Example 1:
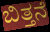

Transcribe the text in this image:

ಬಿತ್ತನೆ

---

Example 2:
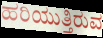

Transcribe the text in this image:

ಹರಿಯುತ್ತಿರುವ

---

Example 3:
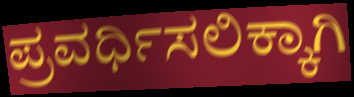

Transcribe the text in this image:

ಪ್ರವರ್ಧಿಸಲಿಕ್ಕಾಗಿ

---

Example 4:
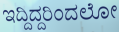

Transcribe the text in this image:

ಇದ್ದಿದ್ದರಿಂದಲೋ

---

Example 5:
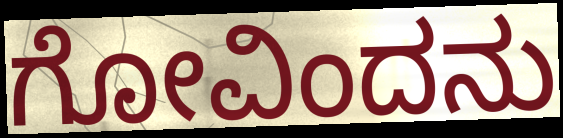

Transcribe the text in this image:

ಗೋವಿಂದನು